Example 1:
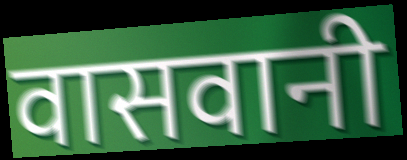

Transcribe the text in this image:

वासवानी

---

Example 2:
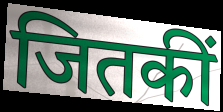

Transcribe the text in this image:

जितकीं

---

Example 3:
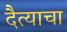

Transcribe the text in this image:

दैत्याचा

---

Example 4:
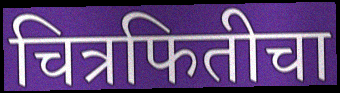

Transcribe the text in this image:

चित्रफितीचा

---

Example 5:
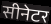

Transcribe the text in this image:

सीनेटर